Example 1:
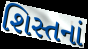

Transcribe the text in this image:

શિસ્તનાં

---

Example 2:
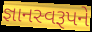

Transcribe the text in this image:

જ્ઞાનસ્વરૂપને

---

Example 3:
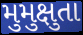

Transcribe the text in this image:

મુમુક્ષુતા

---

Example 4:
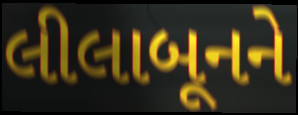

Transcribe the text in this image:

લીલાબૂનને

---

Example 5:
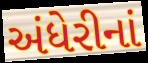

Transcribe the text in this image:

અંધેરીનાં